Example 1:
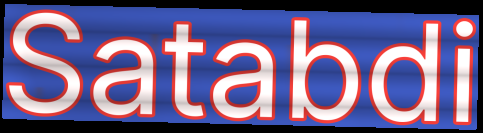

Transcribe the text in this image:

Satabdi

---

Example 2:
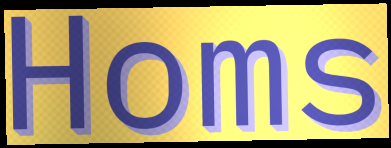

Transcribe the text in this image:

Homs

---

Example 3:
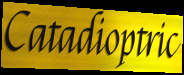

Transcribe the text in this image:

Catadioptric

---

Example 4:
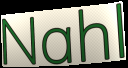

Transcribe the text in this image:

Nahl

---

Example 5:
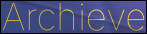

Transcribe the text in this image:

Archieve